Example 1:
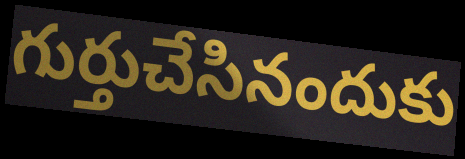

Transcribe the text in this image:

గుర్తుచేసినందుకు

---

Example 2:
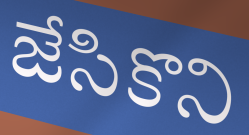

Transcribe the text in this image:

జేసికొని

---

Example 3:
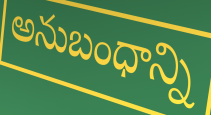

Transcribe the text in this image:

అనుబంధాన్ని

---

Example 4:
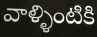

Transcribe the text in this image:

వాళ్ళింటికి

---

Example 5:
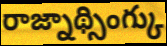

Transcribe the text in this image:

రాజ్నాథ్సింగ్కు